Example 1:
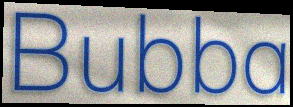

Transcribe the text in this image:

Bubba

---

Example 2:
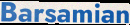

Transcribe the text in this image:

Barsamian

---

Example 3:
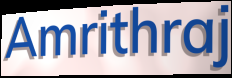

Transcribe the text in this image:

Amrithraj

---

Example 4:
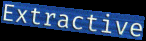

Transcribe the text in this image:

Extractive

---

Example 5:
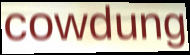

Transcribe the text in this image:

cowdung